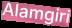
Alamgiri